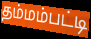
தம்மம்பட்டி